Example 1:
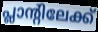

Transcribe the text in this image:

പ്ലാന്റിലേക്ക്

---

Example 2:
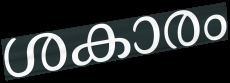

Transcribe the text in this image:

ശകാരം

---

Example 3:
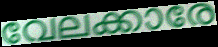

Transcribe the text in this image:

വേലക്കാരേ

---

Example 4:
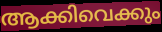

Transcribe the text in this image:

ആക്കിവെക്കും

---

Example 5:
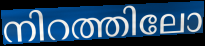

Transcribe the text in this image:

നിറത്തിലോ